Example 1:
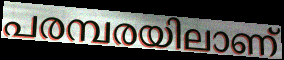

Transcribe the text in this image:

പരമ്പരയിലാണ്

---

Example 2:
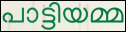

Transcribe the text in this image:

പാട്ടിയമ്മ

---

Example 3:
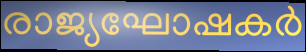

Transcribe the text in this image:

രാജ്യഘോഷകർ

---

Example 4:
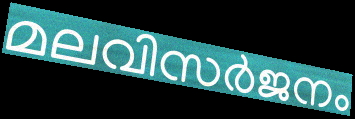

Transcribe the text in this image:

മലവിസർജനം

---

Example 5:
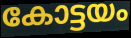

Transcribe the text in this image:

കോട്ടയം